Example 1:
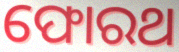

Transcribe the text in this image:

ଫୋରଥ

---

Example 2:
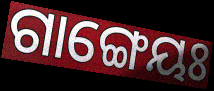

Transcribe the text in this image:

ଗାଙ୍ଗେୟଃ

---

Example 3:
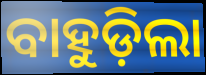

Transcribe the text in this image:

ବାହୁଡ଼ିଲା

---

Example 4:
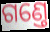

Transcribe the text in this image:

ଗଣ୍ତେ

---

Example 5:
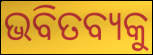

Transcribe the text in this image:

ଭବିତବ୍ୟକୁ